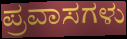
ಪ್ರವಾಸಗಳು